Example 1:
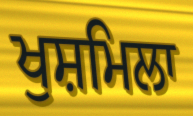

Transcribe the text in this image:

ਖੁਸ਼ਮਿਲਾ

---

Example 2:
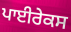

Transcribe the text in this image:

ਪਾਈਰੇਕਸ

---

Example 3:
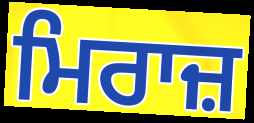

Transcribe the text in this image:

ਮਿਰਾਜ਼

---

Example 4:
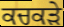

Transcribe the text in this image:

ਕਚਕੜੇ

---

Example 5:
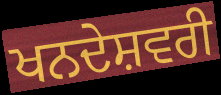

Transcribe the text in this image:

ਖਨਦੇਸ਼ਵਰੀ